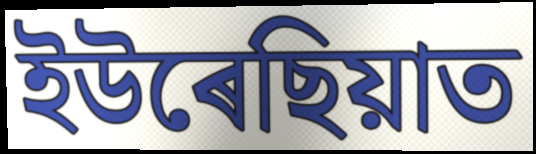
ইউৰেছিয়াত